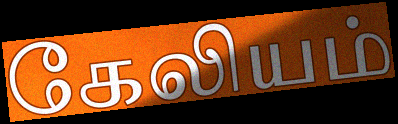
கேலியம்